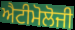
ਐਟੀਮੋਲੋਜੀ